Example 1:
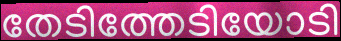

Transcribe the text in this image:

തേടിത്തേടിയോടി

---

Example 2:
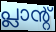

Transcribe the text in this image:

പ്ലാന്റ്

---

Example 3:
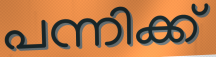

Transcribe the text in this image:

പന്നിക്ക്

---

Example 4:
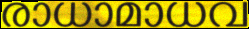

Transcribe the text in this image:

രാധാമാധവ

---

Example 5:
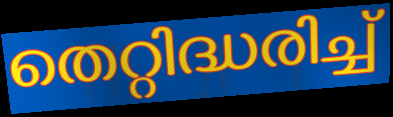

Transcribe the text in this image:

തെറ്റിദ്ധരിച്ച്